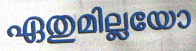
ഏതുമില്ലയോ